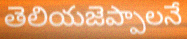
తెలియజెప్పాలనే